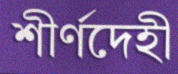
শীর্ণদেহী